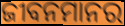
ଜୀବନମାନର